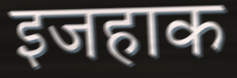
इजहाक